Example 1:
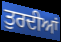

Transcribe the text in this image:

ਤੁਰਦੀਆਂ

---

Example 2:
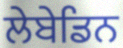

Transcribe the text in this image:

ਲੇਬੇਡਿਨ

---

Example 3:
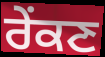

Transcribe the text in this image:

ਰੇੰਕਣ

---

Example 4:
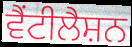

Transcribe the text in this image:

ਵੈਂਟੀਲੈਸ਼ਨ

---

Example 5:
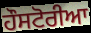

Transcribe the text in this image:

ਹੌਸਟੋਰੀਆ